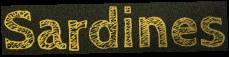
Sardines